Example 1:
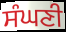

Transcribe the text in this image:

ਸੰਘਣੀ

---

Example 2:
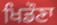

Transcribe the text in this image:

ਖਿਡੌਣਾ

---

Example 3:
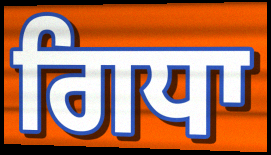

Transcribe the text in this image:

ਗਿਧਾ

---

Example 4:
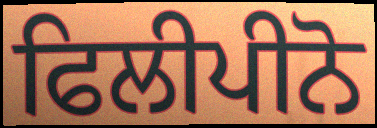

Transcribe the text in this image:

ਫਿਲੀਪੀਨੋ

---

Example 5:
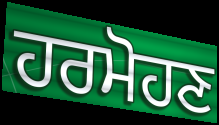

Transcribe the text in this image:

ਹਰਮੋਹਣ